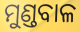
ମୁଣ୍ଡବାଳ